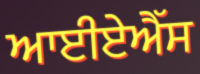
ਆਈਏਐੱਸ